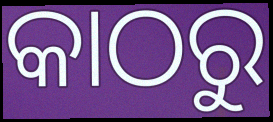
କାଠରୁ